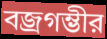
বজ্রগম্ভীর